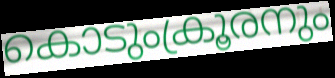
കൊടുംക്രൂരനും